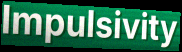
Impulsivity